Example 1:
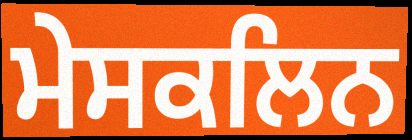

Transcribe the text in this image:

ਮੇਸਕਲਿਨ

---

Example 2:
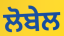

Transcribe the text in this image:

ਲੋਬੇਲ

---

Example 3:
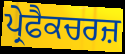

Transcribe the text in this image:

ਪ੍ਰੇਫੈਕਚਰਜ਼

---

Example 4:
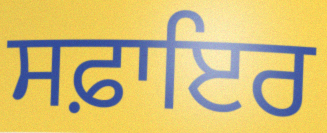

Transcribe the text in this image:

ਸਫ਼ਾਇਰ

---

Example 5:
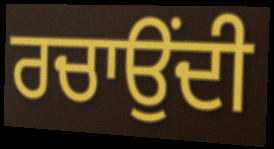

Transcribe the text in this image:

ਰਚਾਉਂਦੀ